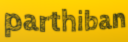
parthiban